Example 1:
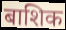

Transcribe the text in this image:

बाशिक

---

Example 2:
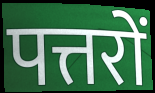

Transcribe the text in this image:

पत्तरों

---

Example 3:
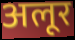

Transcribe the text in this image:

अलूर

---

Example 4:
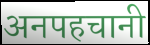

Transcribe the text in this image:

अनपहचानी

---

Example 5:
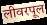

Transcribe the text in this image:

लीवरपूल